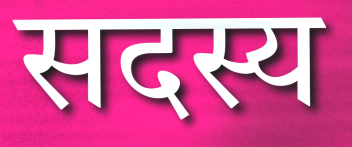
सदस्य